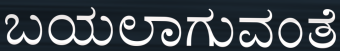
ಬಯಲಾಗುವಂತೆ